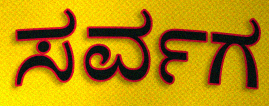
ಸರ್ವಗ